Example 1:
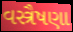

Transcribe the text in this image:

વસ્ત્રૈષણા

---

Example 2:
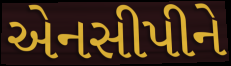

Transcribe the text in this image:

એનસીપીને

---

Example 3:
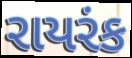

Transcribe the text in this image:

રાયરંક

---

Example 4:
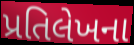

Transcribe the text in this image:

પ્રતિલેખના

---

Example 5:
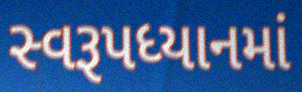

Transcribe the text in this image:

સ્વરૂપધ્યાનમાં